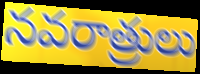
నవరాత్రులు